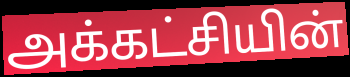
அக்கட்சியின்